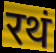
रथं